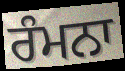
ਰੰਮਨਾ